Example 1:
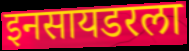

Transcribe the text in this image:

इनसायडरला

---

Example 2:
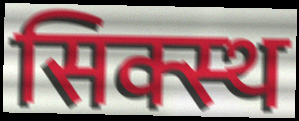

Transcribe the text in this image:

सिक्स्थ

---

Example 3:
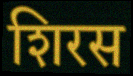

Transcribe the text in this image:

शिरस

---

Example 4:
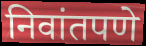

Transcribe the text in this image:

निवांतपणे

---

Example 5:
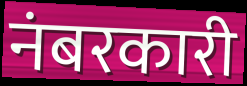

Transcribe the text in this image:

नंबरकारी